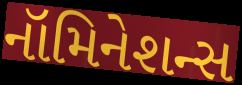
નૉમિનેશન્સ